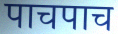
पाचपाच